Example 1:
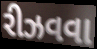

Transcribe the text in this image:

રીઝવવા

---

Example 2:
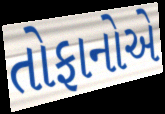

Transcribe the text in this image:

તોફાનોએ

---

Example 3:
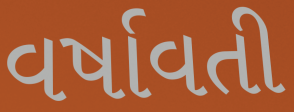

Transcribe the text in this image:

વર્ષાવતી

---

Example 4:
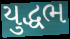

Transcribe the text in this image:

યુદ્ધભ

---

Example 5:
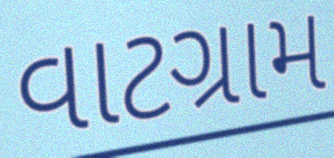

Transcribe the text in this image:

વાટગ્રામ